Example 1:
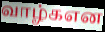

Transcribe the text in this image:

வாழ்கஎன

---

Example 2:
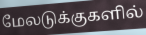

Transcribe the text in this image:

மேலடுக்குகளில்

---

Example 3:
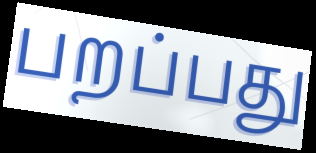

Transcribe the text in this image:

பறப்பது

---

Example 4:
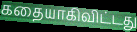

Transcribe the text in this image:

கதையாகிவிட்டது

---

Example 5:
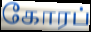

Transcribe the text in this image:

கோரப்